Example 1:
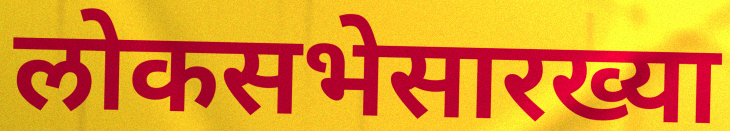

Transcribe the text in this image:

लोकसभेसारख्या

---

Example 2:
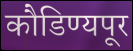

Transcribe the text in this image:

कौडिण्यपूर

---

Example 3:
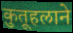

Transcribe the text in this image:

कुतूहलाने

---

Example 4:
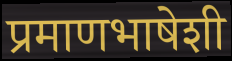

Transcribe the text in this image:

प्रमाणभाषेशी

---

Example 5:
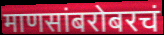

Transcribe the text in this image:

माणसांबरोबरचं